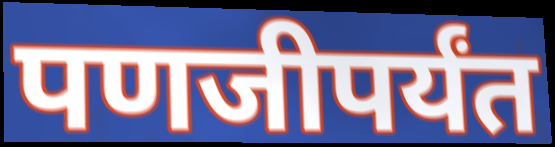
पणजीपर्यंत